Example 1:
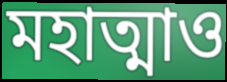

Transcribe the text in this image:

মহাত্মাও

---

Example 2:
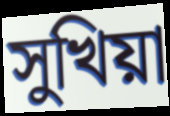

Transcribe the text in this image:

সুখিয়া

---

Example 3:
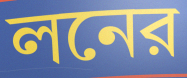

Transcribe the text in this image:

লনের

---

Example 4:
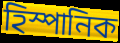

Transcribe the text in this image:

হিস্পানিক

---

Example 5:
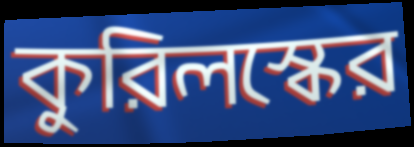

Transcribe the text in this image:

কুরিলস্কের